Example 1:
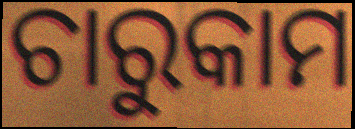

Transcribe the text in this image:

ଚାରୁକାମ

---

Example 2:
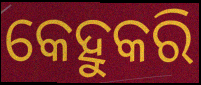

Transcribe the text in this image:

କେହୁକରି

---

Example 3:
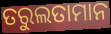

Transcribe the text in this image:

ତରୁଲତାମାନ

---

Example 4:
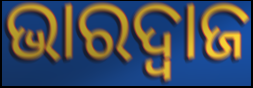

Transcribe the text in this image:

ଭାରଦ୍ୱାଜ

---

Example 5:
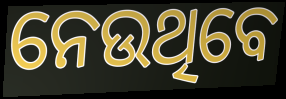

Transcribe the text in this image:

ନେଉଥିବେ